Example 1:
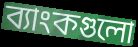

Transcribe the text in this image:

ব্যাংকগুলো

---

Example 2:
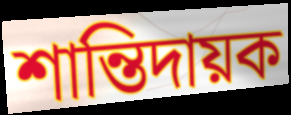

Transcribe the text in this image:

শান্তিদায়ক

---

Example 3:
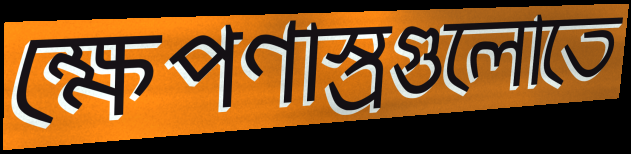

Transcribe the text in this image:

ক্ষেপণাস্ত্রগুলোতে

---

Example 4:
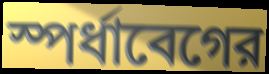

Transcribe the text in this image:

স্পর্ধাবেগের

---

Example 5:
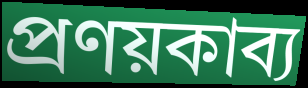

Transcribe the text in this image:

প্রণয়কাব্য